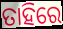
ତାହିରେ